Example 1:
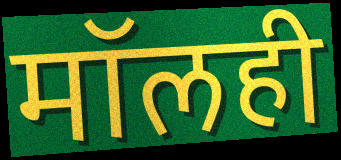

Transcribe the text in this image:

मॉलही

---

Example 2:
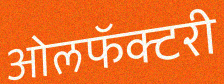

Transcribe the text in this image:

ओलफॅक्टरी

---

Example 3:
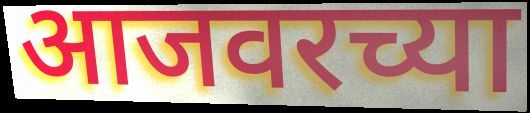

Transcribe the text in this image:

आजवरच्या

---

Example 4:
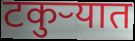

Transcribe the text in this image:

टकुऱ्यात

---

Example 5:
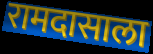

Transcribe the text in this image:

रामदासाला